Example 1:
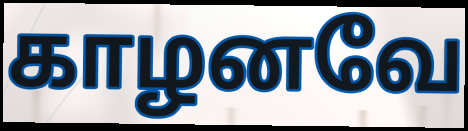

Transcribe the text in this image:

காழனவே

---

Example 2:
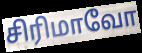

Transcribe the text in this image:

சிரிமாவோ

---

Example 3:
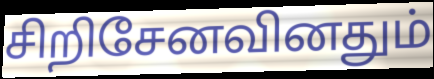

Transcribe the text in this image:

சிறிசேனவினதும்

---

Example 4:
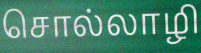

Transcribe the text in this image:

சொல்லாழி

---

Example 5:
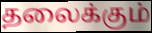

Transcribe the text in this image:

தலைக்கும்